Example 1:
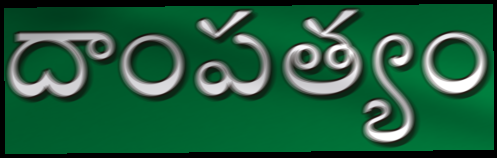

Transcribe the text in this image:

దాంపత్యం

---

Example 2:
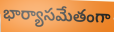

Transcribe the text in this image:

భార్యాసమేతంగా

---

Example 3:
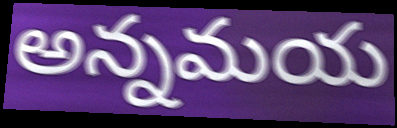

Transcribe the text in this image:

అన్నమయ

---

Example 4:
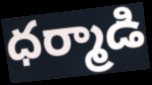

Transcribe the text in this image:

ధర్మాడి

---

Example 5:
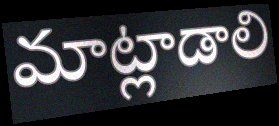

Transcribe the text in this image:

మాట్లాడాలి